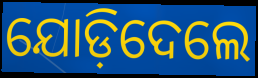
ଯୋଡ଼ିଦେଲେ